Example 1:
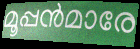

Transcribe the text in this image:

മൂപ്പൻമാരേ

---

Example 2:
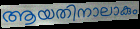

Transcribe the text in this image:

ആയതിനാലാകും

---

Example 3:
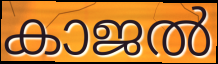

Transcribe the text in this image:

കാജൽ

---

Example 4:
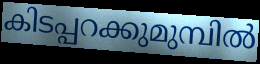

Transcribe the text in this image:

കിടപ്പറക്കുമുമ്പിൽ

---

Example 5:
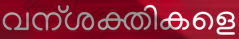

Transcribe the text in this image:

വന്ശക്തികളെ